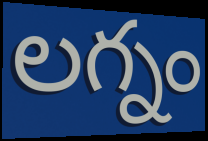
లగ్నం